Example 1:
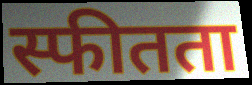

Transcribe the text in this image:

स्फीतता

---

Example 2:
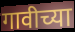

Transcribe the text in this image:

गावीच्या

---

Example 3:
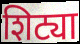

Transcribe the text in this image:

शिट्या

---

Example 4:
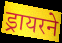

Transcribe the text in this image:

ड्रायरने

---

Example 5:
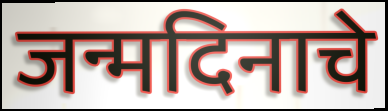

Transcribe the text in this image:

जन्मदिनाचे